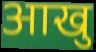
आखु